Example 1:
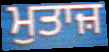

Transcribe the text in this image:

ਮੁਤਾਜ਼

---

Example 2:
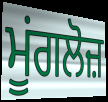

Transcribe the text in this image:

ਮੂਂਗਲੋਜ਼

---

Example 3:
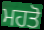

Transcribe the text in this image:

ਮਹਤੋ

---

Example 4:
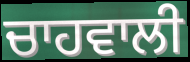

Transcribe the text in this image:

ਚਾਹਵਾਲੀ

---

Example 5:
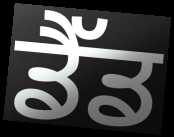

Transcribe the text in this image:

ਡੈੱਡ